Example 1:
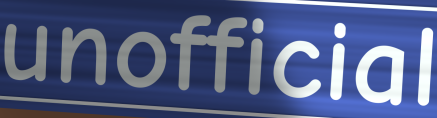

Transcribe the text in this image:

unofficial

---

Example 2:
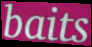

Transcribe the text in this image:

baits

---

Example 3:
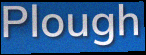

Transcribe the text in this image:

Plough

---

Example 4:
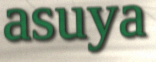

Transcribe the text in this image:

asuya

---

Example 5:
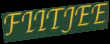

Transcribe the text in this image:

FIITJEE